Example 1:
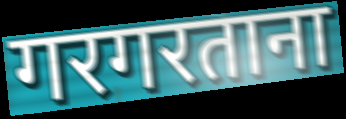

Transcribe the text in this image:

गरगरताना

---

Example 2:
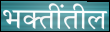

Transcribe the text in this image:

भक्तींतील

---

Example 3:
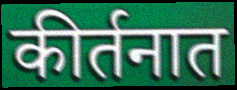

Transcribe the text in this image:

कीर्तनात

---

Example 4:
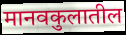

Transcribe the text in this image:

मानवकुलातील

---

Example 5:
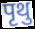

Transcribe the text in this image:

पृथु